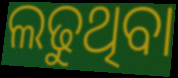
ଲଢୁଥିବା